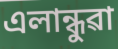
এলান্ধুৱা